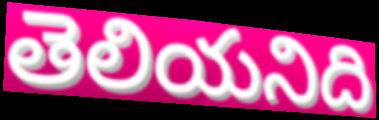
తెలియనిది